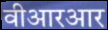
वीआरआर